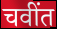
चवींत